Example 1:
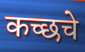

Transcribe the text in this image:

कच्छचे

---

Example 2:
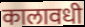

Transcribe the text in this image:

कालावधी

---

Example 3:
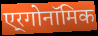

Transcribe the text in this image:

एर्गोनॉमिक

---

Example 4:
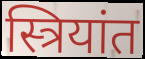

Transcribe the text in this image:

स्त्रियांत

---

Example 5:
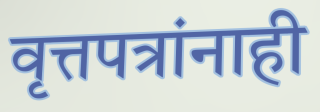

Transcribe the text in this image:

वृत्तपत्रांनाही